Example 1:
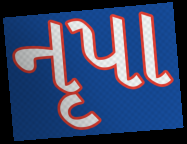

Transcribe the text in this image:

નૃપા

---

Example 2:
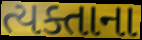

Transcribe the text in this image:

ત્યક્તાના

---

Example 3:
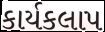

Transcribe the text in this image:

કાર્યકલાપ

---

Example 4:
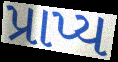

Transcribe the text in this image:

પ્રાપ્ય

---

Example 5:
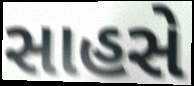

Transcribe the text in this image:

સાહસે